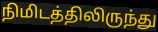
நிமிடத்திலிருந்து